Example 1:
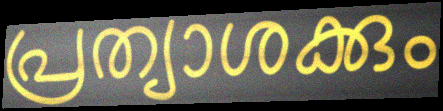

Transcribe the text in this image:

പ്രത്യാശക്കും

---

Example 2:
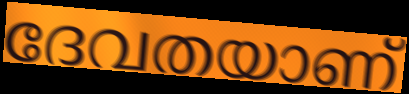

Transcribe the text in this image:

ദേവതയാണ്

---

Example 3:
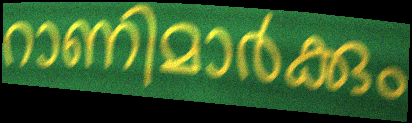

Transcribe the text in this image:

റാണിമാർക്കും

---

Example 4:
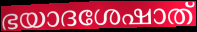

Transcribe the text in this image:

ഭയാദശേഷാത്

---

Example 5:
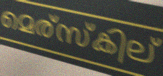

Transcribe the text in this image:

മെര്സ്കില്